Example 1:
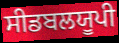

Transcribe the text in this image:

ਸੀਡਬਲਯੂਪੀ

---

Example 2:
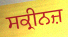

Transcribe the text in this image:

ਸਕ੍ਰੀਨਜ਼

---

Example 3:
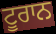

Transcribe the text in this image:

ਟੂਰਾਨ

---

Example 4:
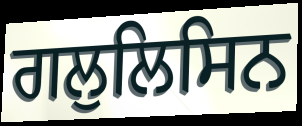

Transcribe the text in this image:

ਗਲੁਲਿਸਿਨ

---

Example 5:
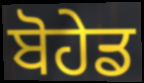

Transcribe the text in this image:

ਬੋਹੇਡ